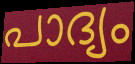
പാദ്യം